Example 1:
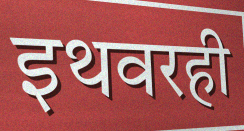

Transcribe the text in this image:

इथवरही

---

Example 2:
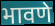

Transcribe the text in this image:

भावणे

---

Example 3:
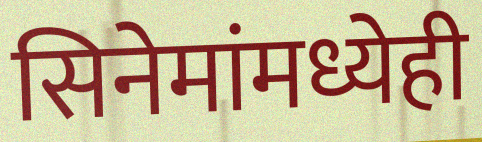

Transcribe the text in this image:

सिनेमांमध्येही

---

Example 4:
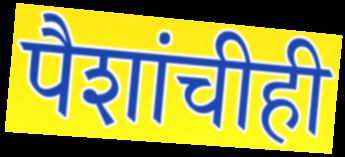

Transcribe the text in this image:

पैशांचीही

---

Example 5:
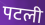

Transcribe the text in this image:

पटली